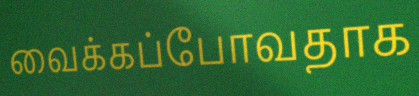
வைக்கப்போவதாக